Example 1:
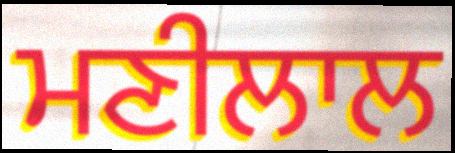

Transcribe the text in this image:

ਮਣੀਲਾਲ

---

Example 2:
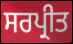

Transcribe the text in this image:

ਸਰਪ੍ਰੀਤ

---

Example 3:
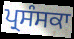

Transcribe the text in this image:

ਪ੍ਰਸੰਸਕਾ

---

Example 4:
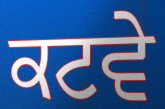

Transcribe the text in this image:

ਕਟਵੇ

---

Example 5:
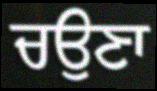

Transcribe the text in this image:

ਚਉਣਾ